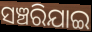
ସଞ୍ଚରିଯାଇ